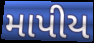
માપીય